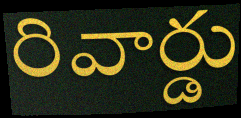
రివార్డు